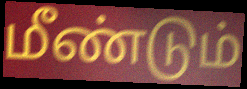
மீண்டும்